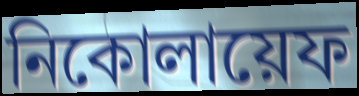
নিকোলায়েফ